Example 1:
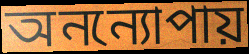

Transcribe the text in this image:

অনন্যোপায়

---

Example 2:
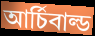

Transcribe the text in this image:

আর্চিবাল্ড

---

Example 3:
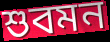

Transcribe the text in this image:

শুবমন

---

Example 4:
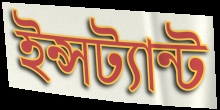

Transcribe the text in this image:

ইন্সট্যান্ট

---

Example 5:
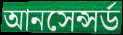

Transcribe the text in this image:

আনসেন্সর্ড